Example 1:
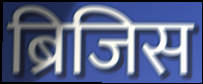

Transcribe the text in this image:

ब्रिजिस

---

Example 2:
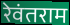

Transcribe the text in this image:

रेवंतराम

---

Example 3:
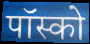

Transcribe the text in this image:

पॉस्को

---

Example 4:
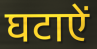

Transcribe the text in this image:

घटाऐं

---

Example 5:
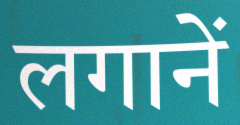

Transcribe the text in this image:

लगानें